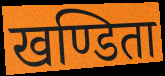
खण्डिता